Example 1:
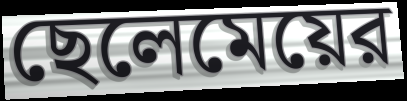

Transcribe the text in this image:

ছেলেমেয়ের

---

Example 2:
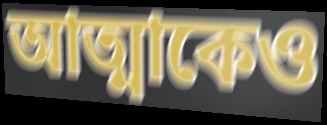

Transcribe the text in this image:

আত্মাকেও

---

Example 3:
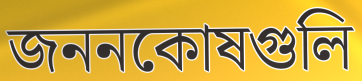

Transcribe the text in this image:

জননকোষগুলি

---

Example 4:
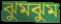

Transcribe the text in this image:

ঝুমঝুম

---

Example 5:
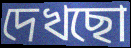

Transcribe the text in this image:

দেখছো